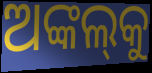
ଅଙ୍କଲ୍‌କୁ